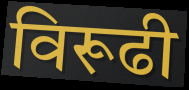
विरूढी